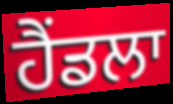
ਹੈਂਡਲਾ